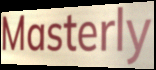
Masterly